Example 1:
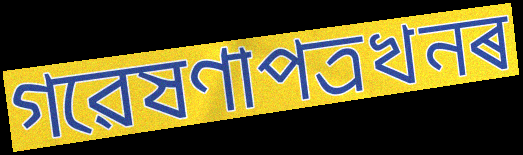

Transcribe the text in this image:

গৱেষণাপত্ৰখনৰ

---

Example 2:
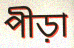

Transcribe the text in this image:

পীড়া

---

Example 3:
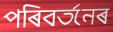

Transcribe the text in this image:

পৰিবৰ্তনেৰ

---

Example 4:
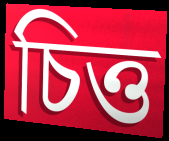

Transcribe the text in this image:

চিত্ত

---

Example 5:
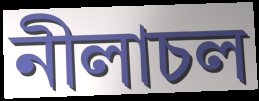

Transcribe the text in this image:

নীলাচল